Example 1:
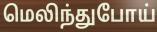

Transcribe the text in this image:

மெலிந்துபோய்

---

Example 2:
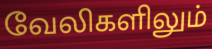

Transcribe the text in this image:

வேலிகளிலும்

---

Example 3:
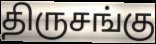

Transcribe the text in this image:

திருசங்கு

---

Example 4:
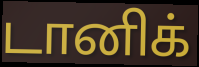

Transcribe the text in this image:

டானிக்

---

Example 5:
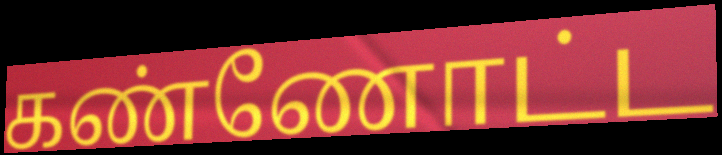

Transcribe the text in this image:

கண்ணோட்ட